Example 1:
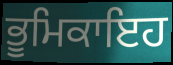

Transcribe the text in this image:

ਭੂਮਿਕਾਇਹ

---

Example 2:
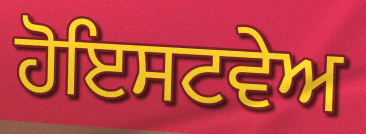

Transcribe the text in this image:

ਹੋਇਸਟਵੇਅ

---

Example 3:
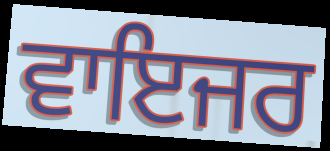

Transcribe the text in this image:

ਵਾਇਜਰ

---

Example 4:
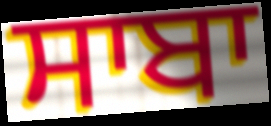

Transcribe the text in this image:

ਸਾਬਾ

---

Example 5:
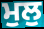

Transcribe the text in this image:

ਮੁਲੁ